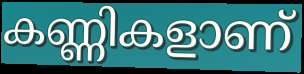
കണ്ണികളാണ്